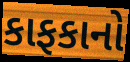
કાફકાનો